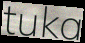
tuka